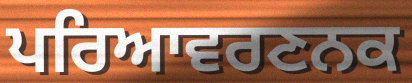
ਪਰਿਆਵਰਣਨਕ